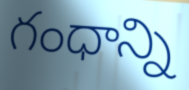
గంధాన్ని